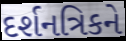
દર્શનત્રિકને